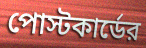
পোস্টকার্ডের